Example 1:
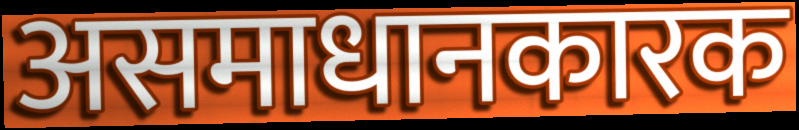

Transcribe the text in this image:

असमाधानकारक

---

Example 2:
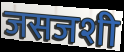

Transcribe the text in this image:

जसजशी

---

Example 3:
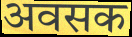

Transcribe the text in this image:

अवसक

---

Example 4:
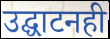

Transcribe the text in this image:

उद्घाटनही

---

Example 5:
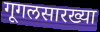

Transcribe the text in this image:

गूगलसारख्या